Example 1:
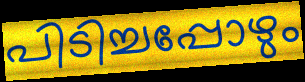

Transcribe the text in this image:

പിടിച്ചപ്പോഴും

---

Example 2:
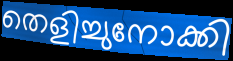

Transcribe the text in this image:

തെളിച്ചുനോക്കി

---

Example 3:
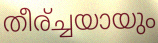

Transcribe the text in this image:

തീര്ച്ചയായും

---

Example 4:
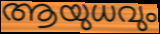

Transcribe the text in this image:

ആയുധവും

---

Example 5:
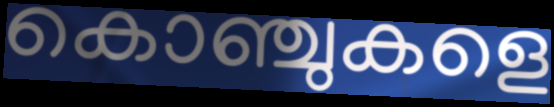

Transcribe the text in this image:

കൊഞ്ചുകളെ